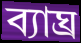
ব্যাঘ্ৰ